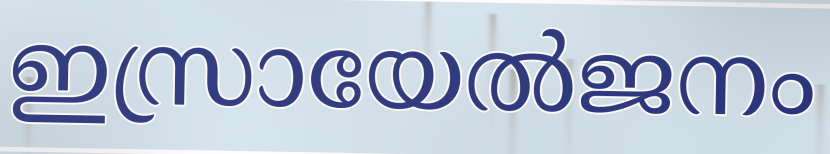
ഇസ്രായേൽജനം